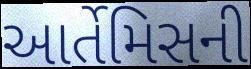
આર્તેમિસની